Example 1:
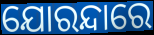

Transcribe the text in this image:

ଯୋରନ୍ଦାରେ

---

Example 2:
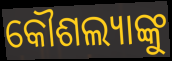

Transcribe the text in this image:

କୌଶଲ୍ୟାଙ୍କୁ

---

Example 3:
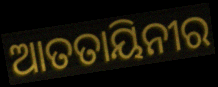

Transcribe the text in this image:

ଆତତାୟିନୀର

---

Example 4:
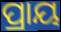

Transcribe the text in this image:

ପ୍ରାୟ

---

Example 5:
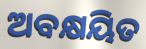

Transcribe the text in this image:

ଅବକ୍ଷୟିତ